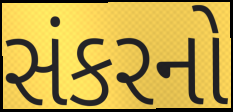
સંકરનો